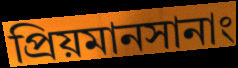
প্রিয়মানসানাং